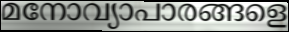
മനോവ്യാപാരങ്ങളെ